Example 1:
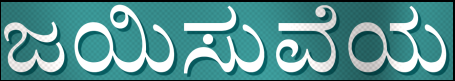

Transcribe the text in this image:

ಜಯಿಸುವೆಯ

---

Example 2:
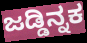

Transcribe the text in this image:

ಜಡ್ಡಿನ್ನಕ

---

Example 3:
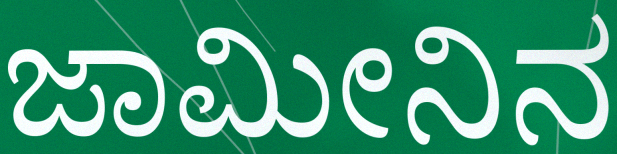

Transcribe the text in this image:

ಜಾಮೀನಿನ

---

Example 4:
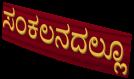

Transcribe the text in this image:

ಸಂಕಲನದಲ್ಲೂ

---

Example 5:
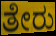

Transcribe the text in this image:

ತೇರು